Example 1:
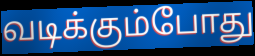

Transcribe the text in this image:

வடிக்கும்போது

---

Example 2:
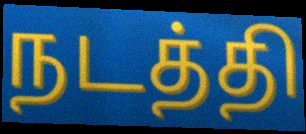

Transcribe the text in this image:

நடத்தி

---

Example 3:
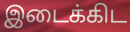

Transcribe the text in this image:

இடைக்கிட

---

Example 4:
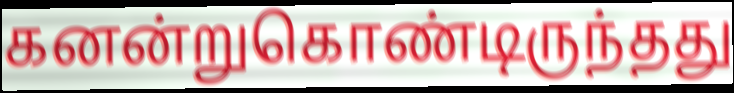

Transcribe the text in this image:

கனன்றுகொண்டிருந்தது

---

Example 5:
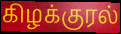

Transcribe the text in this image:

கிழக்குரல்